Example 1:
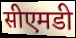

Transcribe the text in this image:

सीएमडी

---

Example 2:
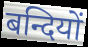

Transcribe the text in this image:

बन्दियों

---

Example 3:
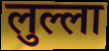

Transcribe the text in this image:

लुल्ला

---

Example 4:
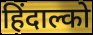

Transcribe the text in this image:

हिंदाल्को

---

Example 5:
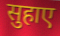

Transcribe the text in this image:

सुहाए